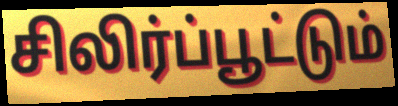
சிலிர்ப்பூட்டும்